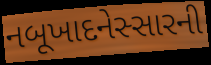
નબૂખાદનેસ્સારની